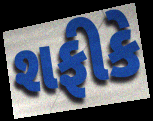
શફીકે